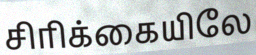
சிரிக்கையிலே